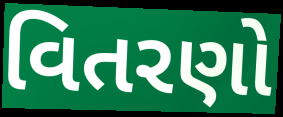
વિતરણો